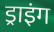
ड्राइंग